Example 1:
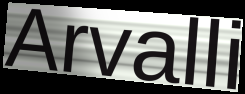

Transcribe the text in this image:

Arvalli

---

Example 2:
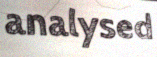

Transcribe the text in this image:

analysed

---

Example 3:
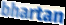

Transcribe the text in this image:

bhartan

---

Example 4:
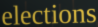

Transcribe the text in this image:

elections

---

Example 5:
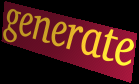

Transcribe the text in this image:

generate